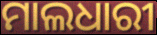
ମାଲଧାରୀ